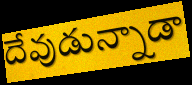
దేవుడున్నాడా